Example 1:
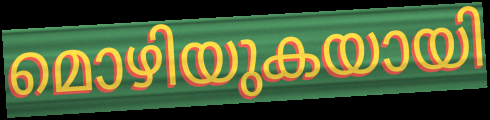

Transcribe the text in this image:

മൊഴിയുകയായി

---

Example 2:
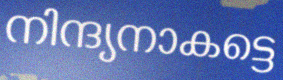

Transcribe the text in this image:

നിന്ദ്യനാകട്ടെ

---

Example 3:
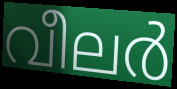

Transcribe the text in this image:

വീലർ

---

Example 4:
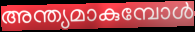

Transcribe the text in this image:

അന്ത്യമാകുമ്പോൾ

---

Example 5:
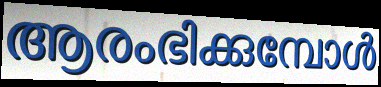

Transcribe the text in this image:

ആരംഭിക്കുമ്പോൾ